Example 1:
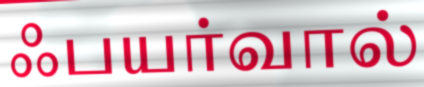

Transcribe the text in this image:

ஃபயர்வால்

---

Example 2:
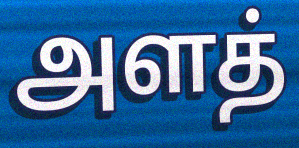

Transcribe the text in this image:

அளத்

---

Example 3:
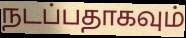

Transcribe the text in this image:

நடப்பதாகவும்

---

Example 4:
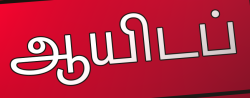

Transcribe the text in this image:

ஆயிடப்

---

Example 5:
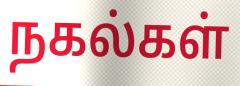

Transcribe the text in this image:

நகல்கள்